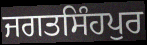
ਜਗਤਸਿੰਹਪੁਰ